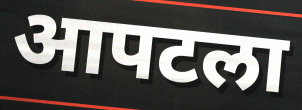
आपटला